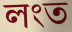
লংত